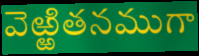
వెఱ్ఱితనముగా